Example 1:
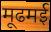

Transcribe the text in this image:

मूढमई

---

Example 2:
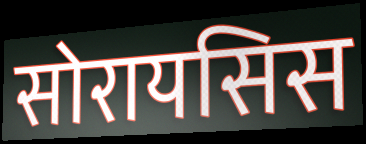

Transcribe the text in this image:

सोरायसिस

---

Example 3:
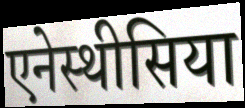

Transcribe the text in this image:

एनेस्थीसिया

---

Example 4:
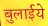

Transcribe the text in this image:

बुलाईये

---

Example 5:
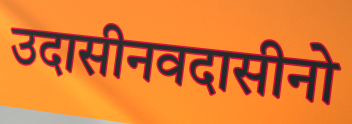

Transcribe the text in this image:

उदासीनवदासीनो